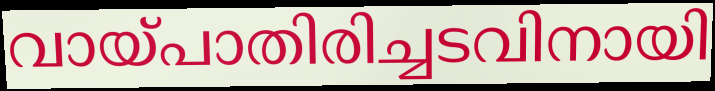
വായ്പാതിരിച്ചടവിനായി